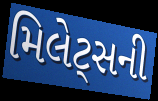
મિલેટ્સની